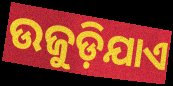
ଉଜୁଡ଼ିଯାଏ